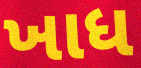
ખાધ